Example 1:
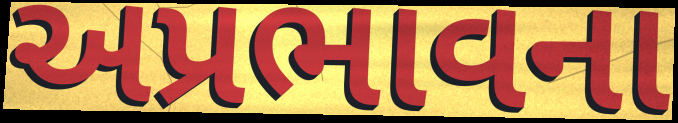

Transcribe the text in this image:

અપ્રભાવના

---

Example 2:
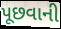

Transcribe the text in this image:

પૂછવાની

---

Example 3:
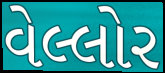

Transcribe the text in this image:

વેલ્લોર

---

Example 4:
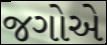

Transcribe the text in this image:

જગોએ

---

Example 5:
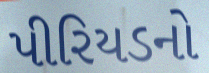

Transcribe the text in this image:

પીરિયડનો